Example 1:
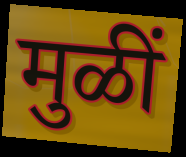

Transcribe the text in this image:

मुळीं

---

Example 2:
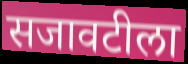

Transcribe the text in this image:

सजावटीला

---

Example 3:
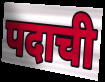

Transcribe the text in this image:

पदाची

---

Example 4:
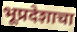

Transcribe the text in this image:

भूप्रदेशाचा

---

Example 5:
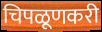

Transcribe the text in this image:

चिपळूणकरी